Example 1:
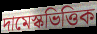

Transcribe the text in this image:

দামেস্কভিত্তিক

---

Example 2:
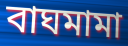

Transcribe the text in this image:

বাঘমামা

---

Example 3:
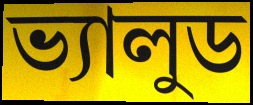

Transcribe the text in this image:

ভ্যালুড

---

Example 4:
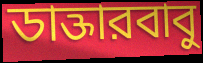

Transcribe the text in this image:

ডাক্তারবাবু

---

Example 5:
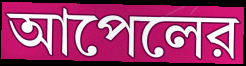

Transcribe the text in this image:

আপেলের